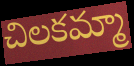
చిలకమ్మా